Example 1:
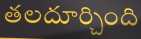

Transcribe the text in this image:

తలదూర్చింది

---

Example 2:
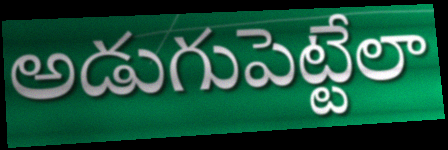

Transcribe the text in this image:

అడుగుపెట్టేలా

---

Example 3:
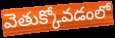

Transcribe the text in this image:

వెతుక్కోవడంలో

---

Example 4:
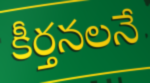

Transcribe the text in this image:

కీర్తనలనే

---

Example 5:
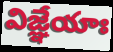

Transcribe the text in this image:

విజ్ఞేయాః